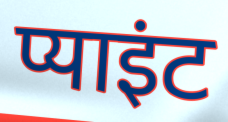
प्याइंट